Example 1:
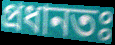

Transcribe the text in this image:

প্ৰধানতঃ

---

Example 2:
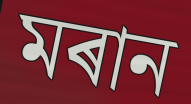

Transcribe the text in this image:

মৰান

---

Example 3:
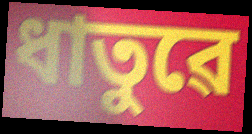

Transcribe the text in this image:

ধাতুৱে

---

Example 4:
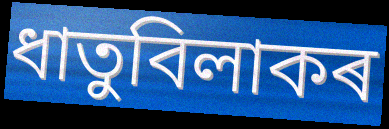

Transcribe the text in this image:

ধাতুবিলাকৰ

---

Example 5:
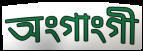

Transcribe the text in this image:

অংগাংগী